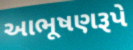
આભૂષણરૂપે